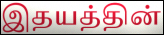
இதயத்தின்